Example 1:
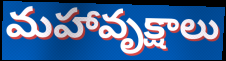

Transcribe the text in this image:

మహావృక్షాలు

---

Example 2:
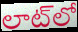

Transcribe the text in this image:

లాట్‌లో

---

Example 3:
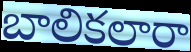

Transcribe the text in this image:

బాలికలారా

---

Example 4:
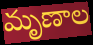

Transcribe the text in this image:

మృణాల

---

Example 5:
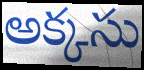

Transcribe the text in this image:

అక్కసు